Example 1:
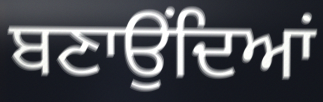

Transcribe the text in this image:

ਬਣਾਉਂਦਿਆਂ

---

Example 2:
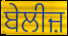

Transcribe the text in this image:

ਬੇਲੀਜ਼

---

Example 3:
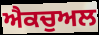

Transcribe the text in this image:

ਐਕਚੁਅਲ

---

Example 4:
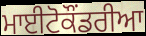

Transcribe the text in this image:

ਮਾਈਟੋਕੌਂਡਰੀਆ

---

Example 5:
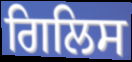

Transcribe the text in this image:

ਗਿਲਿਸ